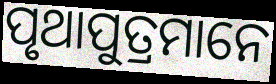
ପୃଥାପୁତ୍ରମାନେ